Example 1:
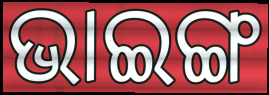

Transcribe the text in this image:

ଭାଇଙ୍ଗ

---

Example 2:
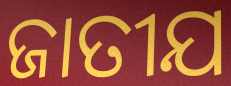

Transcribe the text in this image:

ଜାତୀଯ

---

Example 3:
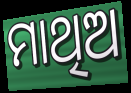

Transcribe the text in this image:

ମାଥିଅ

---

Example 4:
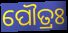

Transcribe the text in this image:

ପୌତ୍ରଃ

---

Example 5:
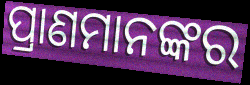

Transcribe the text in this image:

ପ୍ରାଣମାନଙ୍କର